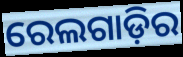
ରେଲଗାଡ଼ିର